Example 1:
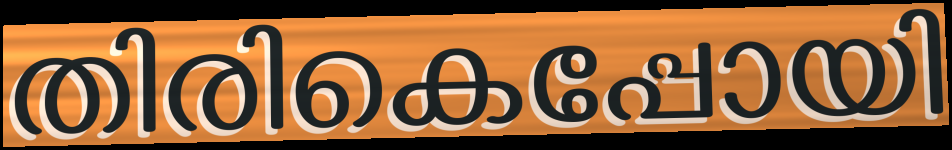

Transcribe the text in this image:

തിരികെപ്പോയി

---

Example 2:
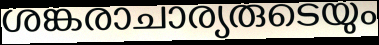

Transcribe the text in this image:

ശങ്കരാചാര്യരുടെയും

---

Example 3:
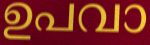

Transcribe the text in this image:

ഉപവാ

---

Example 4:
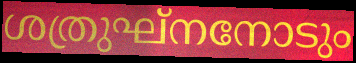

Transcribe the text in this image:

ശത്രുഘ്നനോടും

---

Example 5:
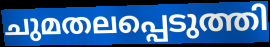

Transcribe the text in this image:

ചുമതലപ്പെടുത്തി